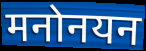
मनोनयन